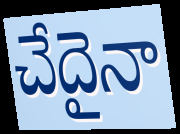
చేదైనా